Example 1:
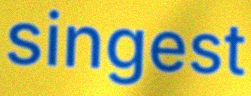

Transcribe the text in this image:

singest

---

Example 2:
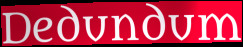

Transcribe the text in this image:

Dedundum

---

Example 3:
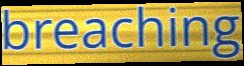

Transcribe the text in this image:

breaching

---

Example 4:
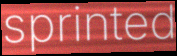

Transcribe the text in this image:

sprinted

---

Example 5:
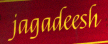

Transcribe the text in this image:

jagadeesh